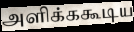
அளிக்ககூடிய